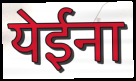
येईना